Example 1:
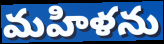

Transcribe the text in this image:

మహిళను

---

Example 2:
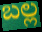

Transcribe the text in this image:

బల్ల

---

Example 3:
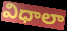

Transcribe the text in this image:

విధాలా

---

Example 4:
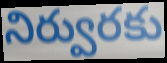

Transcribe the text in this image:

నిర్వురకు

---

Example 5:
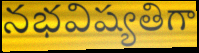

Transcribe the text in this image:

నభవిష్యతిగా